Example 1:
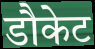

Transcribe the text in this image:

डौकेट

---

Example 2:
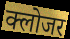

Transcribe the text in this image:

क्लोजर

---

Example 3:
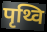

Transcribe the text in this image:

पृथ्वि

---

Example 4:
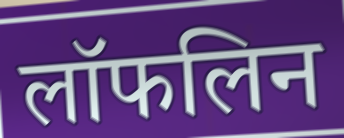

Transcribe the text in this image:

लॉफलिन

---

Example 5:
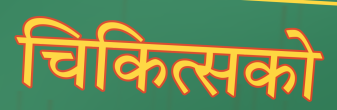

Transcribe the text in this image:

चिकित्सको